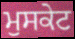
ਮੁਸਕੇਟ